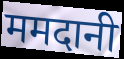
ममदानी